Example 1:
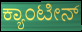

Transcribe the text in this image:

ಕ್ಯಾಂಟೀನ್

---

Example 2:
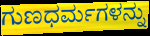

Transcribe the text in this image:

ಗುಣಧರ್ಮಗಳನ್ನು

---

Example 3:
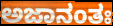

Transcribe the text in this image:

ಅಜಾನಂತಃ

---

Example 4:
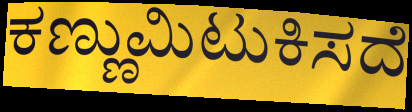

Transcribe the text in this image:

ಕಣ್ಣುಮಿಟುಕಿಸದೆ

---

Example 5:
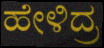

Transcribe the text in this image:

ಹೇಳಿದ್ರ